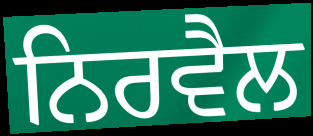
ਨਿਰਵੈਲ